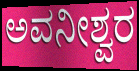
ಅವನೀಶ್ವರ